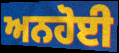
ਅਨਹੋਈ